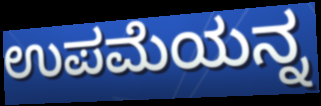
ಉಪಮೆಯನ್ನ